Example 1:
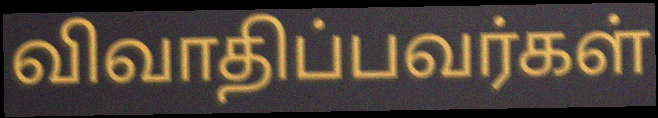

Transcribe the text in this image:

விவாதிப்பவர்கள்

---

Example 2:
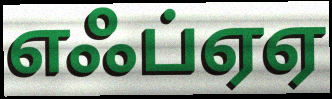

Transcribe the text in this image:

எஃப்ஏஏ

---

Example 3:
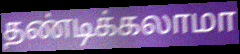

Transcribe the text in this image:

தண்டிக்கலாமா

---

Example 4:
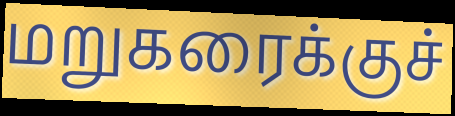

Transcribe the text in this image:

மறுகரைக்குச்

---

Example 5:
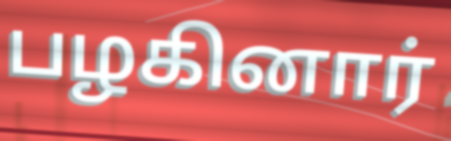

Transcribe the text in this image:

பழகினார்